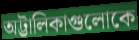
অট্টালিকাগুলোকে